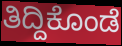
ತಿದ್ದಿಕೊಂಡೆ